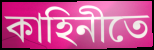
কাহিনীতে